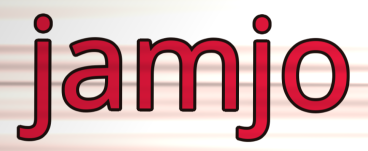
jamjo